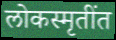
लोकस्मृतींत